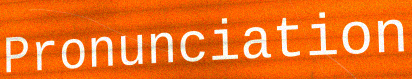
Pronunciation